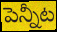
పెన్నీట